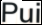
Pui